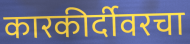
कारकीर्दीवरचा